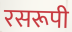
रसरूपी